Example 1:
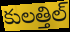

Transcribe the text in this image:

కులత్తిల్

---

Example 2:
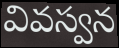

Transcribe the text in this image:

వివస్వన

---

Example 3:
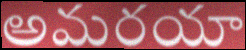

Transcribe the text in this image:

అమరయా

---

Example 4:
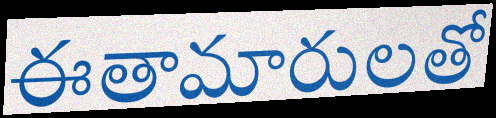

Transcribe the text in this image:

ఈతామారులతో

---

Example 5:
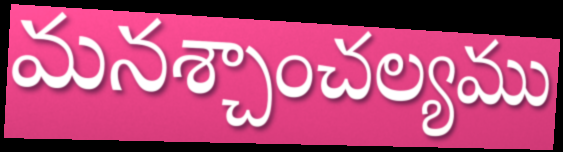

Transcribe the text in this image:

మనశ్చాంచల్యము